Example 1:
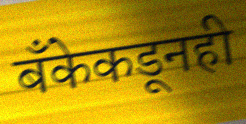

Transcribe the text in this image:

बँकेकडूनही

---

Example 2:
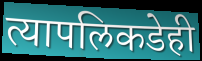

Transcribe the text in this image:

त्यापलिकडेही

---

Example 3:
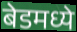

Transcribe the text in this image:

बेडमध्ये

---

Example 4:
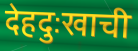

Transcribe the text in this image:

देहदुःखाची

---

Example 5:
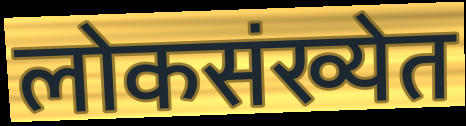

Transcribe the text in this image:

लोकसंख्येत